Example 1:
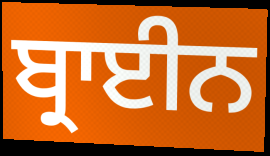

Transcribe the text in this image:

ਬ੍ਰਾਈਨ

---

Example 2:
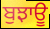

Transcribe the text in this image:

ਬੁਝਾਊ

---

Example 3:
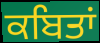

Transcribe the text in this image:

ਕਬਿਤਾਂ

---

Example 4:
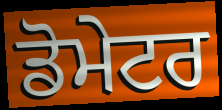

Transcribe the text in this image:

ਡੋਮੇਟਰ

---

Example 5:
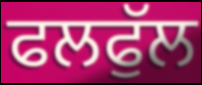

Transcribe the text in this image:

ਫਲਫੁੱਲ